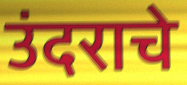
उंदराचे